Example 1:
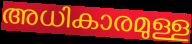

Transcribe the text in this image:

അധികാരമുള്ള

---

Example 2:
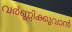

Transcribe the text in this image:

വർണ്ണിക്കുവാൻ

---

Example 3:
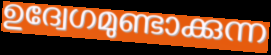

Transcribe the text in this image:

ഉദ്വേഗമുണ്ടാക്കുന്ന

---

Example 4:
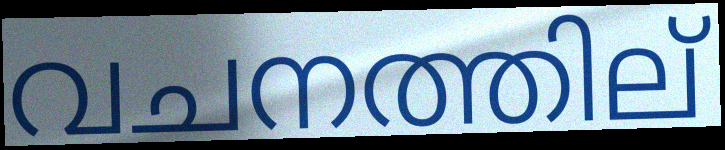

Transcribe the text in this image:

വചനത്തില്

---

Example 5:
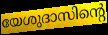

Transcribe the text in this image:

യേശുദാസിന്റെ